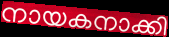
നായകനാക്കി